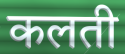
कलती